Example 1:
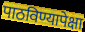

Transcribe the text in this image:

पाठविण्यापेक्षा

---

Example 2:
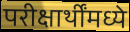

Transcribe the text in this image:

परीक्षार्थींमध्ये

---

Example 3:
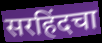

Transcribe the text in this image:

सरहिंदचा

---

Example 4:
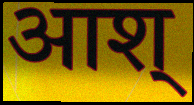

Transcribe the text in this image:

आश्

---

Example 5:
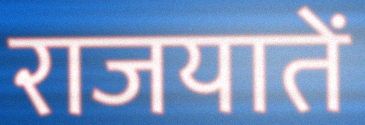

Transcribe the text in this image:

राजयातें